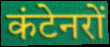
कंटेनरों